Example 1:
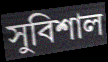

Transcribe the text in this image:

সুবিশাল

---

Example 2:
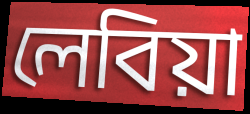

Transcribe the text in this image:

লেবিয়া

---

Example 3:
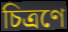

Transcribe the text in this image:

চিত্ৰণে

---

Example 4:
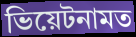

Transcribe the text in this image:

ভিয়েটনামত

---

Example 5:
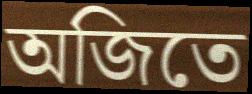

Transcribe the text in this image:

অজিতে